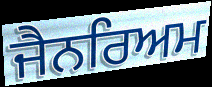
ਜੈਨਰਿਅਮ